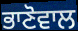
ਭਾਣੋਵਾਲ